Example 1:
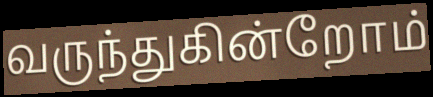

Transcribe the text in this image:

வருந்துகின்றோம்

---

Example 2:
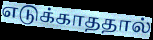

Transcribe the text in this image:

எடுக்காததால்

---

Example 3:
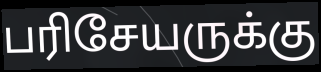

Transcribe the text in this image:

பரிசேயருக்கு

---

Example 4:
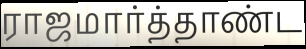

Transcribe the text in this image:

ராஜமார்த்தாண்ட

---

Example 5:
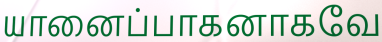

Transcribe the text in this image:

யானைப்பாகனாகவே